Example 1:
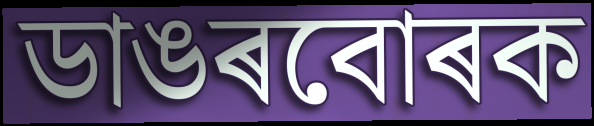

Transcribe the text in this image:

ডাঙৰবোৰক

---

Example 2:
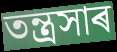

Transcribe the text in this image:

তন্ত্ৰসাৰ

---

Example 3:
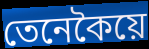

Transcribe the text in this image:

তেনেকৈয়ে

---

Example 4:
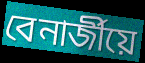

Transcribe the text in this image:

বেনাৰ্জীয়ে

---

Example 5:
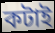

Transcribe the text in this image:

কটাই